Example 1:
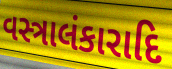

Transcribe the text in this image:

વસ્ત્રાલંકારાદિ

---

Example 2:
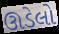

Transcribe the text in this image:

ઊડેલો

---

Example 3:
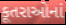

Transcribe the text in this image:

કૂતરાઓનાં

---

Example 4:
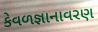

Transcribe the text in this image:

કેવળજ્ઞાનાવરણ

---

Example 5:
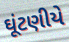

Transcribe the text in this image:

ઘૂંટણીયે